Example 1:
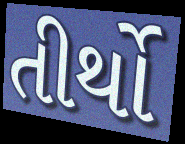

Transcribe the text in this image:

તીર્થો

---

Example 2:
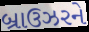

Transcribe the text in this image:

બ્રાઉઝરને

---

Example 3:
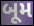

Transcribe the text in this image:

બૂમ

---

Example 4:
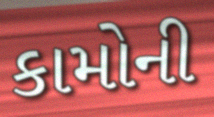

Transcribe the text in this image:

કામોની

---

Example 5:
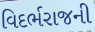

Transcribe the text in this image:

વિદર્ભરાજની